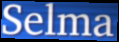
Selma